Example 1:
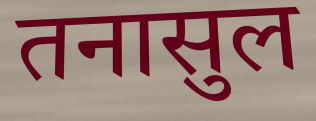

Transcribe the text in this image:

तनासुल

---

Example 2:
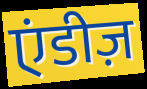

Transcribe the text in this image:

एंडीज़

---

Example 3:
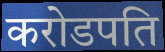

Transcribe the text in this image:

करोडपति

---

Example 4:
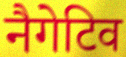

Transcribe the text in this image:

नैगेटिव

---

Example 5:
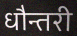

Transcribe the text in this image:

धौन्तरी